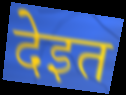
देइत